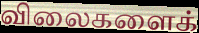
விலைகளைக்